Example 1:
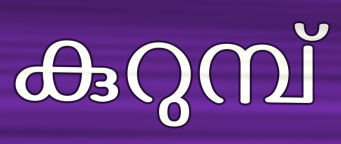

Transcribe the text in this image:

കുറുമ്പ്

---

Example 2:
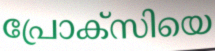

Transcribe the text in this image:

പ്രോക്സിയെ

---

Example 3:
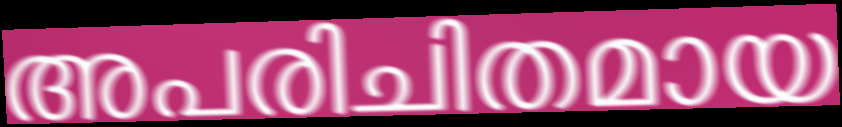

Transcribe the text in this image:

അപരിചിതമായ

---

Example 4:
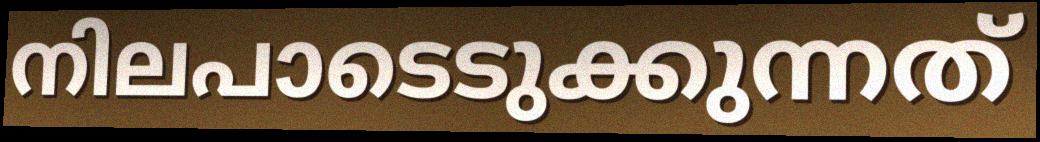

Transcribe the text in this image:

നിലപാടെടുക്കുന്നത്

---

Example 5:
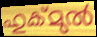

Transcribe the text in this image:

ഹുക്മുൽ